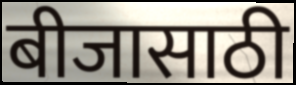
बीजासाठी